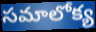
సమాలోక్య